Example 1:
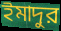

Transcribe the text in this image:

ইমাদুর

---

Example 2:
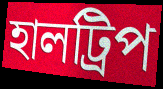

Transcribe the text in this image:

হালট্রিপ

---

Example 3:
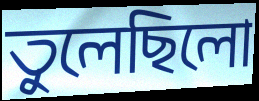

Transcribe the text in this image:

তুলেছিলো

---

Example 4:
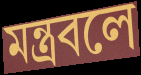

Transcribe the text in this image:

মন্ত্রবলে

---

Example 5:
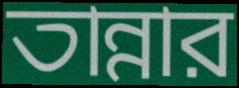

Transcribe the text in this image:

তান্নার